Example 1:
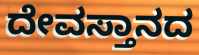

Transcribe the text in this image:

ದೇವಸ್ತಾನದ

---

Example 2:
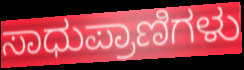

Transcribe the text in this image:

ಸಾಧುಪ್ರಾಣಿಗಳು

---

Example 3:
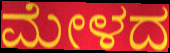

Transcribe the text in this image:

ಮೇಳದ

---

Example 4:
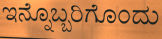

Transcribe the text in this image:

ಇನ್ನೊಬ್ಬರಿಗೊಂದು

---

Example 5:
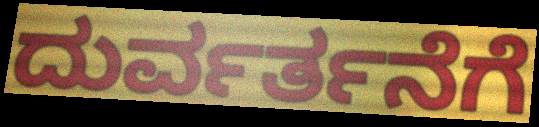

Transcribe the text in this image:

ದುರ್ವರ್ತನೆಗೆ